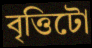
বৃত্তিটো